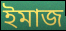
ইমাজ